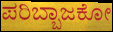
ಪರಿಬ್ಬಾಜಕೋ